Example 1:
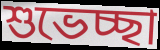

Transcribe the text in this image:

শুভেচ্ছা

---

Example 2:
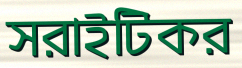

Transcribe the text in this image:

সরাইটিকর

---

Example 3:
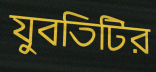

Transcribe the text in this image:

যুবতিটির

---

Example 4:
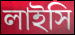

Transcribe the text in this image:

লাইসি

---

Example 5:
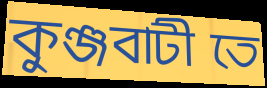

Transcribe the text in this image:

কুঞ্জবাটীতে